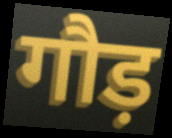
गौड़